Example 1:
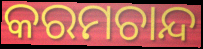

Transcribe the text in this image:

କରମଚାନ୍ଦ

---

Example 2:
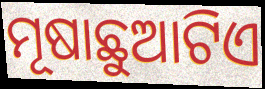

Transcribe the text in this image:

ମୂଷାଛୁଆଟିଏ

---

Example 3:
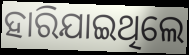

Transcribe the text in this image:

ହାରିଯାଇଥିଲେ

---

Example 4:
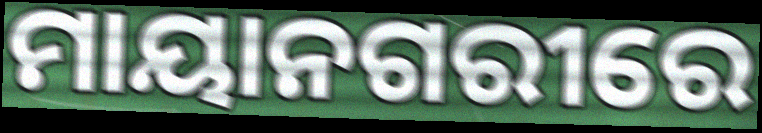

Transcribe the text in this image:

ମାୟାନଗରୀରେ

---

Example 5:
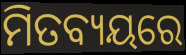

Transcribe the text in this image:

ମିତବ୍ୟୟରେ